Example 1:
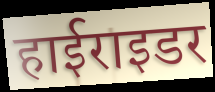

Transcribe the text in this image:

हाईराइडर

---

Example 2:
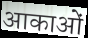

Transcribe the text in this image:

आकाओं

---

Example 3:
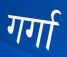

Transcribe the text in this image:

गर्गा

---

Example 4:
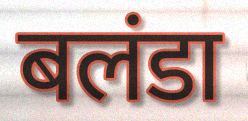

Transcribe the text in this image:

बलंडा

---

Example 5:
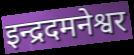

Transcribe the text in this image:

इन्द्रदमनेश्वर